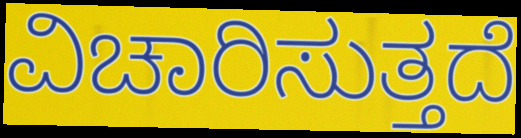
ವಿಚಾರಿಸುತ್ತದೆ